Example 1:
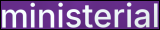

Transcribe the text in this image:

ministerial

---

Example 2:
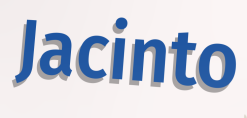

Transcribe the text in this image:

Jacinto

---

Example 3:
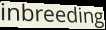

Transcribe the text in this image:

inbreeding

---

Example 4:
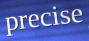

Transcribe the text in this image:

precise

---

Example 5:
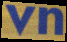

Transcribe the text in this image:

vn